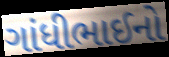
ગાંધીભાઈનો